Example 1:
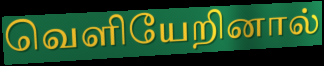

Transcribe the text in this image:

வெளியேறினால்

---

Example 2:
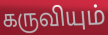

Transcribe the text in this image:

கருவியும்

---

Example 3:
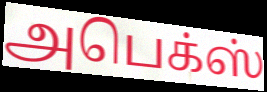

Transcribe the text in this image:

அபெக்ஸ்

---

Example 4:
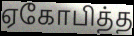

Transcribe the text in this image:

ஏகோபித்த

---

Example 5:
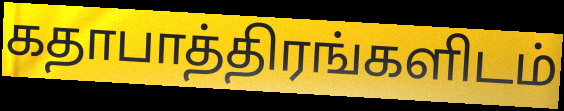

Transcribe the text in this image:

கதாபாத்திரங்களிடம்